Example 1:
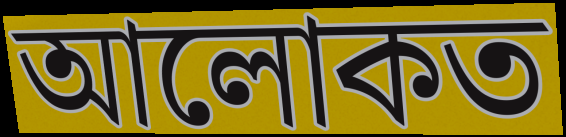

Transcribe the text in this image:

আলোকত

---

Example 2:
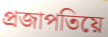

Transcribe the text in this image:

প্ৰজাপতিয়ে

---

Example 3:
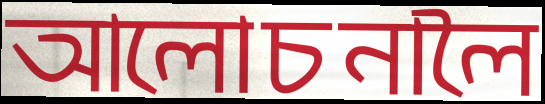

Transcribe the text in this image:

আলোচনালৈ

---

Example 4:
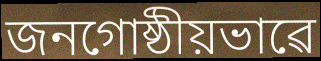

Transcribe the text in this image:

জনগোষ্ঠীয়ভাৱে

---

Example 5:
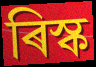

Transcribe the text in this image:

ৰিস্ক